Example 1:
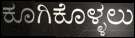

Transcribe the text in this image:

ಕೂಗಿಕೊಳ್ಳಲು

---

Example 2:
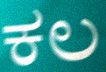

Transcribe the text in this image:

ಕಲ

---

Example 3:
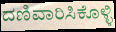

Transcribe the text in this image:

ದಣಿವಾರಿಸಿಕೊಳ್ಳಿ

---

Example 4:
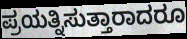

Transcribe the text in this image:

ಪ್ರಯತ್ನಿಸುತ್ತಾರಾದರೂ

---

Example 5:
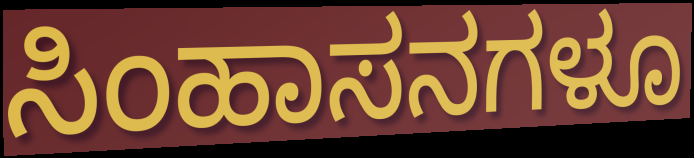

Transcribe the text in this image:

ಸಿಂಹಾಸನಗಳೂ